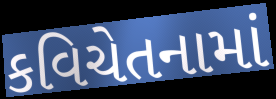
કવિચેતનામાં